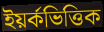
ইয়র্কভিত্তিক